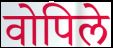
वोपिले